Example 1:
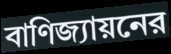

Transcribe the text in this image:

বাণিজ্যায়নের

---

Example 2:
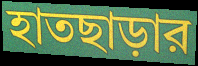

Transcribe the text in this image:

হাতছাড়ার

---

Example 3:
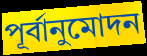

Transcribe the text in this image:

পূর্বানুমোদন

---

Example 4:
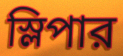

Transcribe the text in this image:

স্লিপার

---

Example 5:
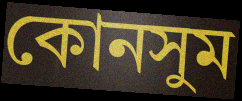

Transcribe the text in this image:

কোনসুম